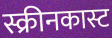
स्क्रीनकास्ट